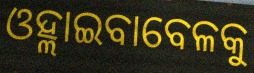
ଓହ୍ଲାଇବାବେଳକୁ